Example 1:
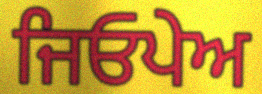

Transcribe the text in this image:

ਜਿਓਪੇਅ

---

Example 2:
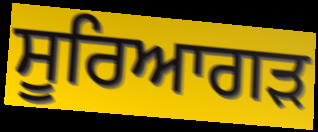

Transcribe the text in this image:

ਸੂਰਿਆਗੜ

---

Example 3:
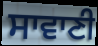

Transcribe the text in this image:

ਸਾਵਾਣੀ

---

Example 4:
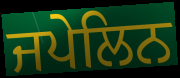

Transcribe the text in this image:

ਜਪੇਲਿਨ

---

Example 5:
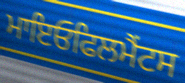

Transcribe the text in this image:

ਮਾਇਓਫਿਲਮੈਂਟਸ